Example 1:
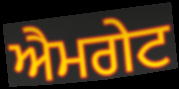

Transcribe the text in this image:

ਐਮਗੇਟ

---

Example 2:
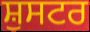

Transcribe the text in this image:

ਸ਼ੁਸਟਰ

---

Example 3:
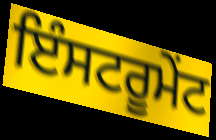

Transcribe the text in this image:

ਇੰਸਟਰੂਮੇਂਟ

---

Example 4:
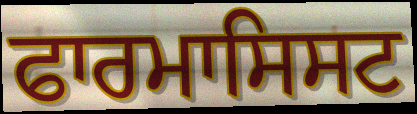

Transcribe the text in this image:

ਫਾਰਮਾਸਿਸਟ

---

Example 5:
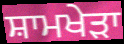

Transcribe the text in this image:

ਸ਼ਾਮਖੇੜਾ